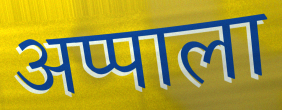
अप्पाला